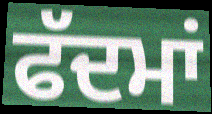
ਫੱਦਮਾਂ